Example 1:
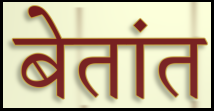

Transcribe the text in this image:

बेतांत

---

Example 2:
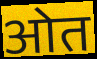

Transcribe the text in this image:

ओत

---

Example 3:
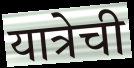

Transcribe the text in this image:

यात्रेची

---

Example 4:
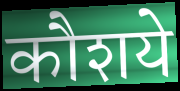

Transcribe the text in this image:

कौशये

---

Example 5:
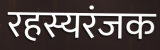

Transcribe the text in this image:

रहस्यरंजक